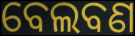
ବେଲବଣ